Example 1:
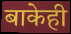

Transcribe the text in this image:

बाकेही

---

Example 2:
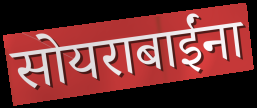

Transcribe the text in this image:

सोयराबाईंना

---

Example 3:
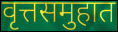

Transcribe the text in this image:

वृत्तसमुहात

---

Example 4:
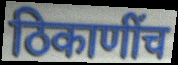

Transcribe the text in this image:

ठिकाणींच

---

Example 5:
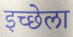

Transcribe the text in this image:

इच्छेला